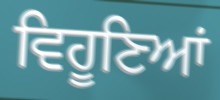
ਵਿਹੂਣਿਆਂ